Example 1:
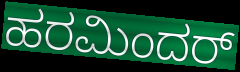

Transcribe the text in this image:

ಹರಮಿಂದರ್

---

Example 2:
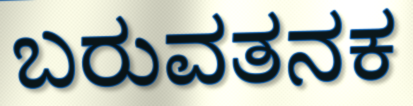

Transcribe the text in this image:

ಬರುವತನಕ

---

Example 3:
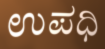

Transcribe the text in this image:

ಉಪಧಿ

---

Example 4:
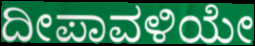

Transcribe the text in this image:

ದೀಪಾವಳಿಯೇ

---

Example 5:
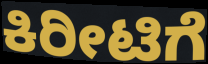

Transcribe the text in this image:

ಕಿರೀಟಿಗೆ